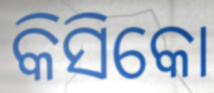
କିସିକୋ